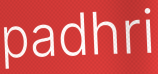
padhri